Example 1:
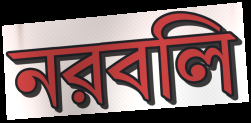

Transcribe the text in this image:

নরবলি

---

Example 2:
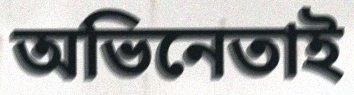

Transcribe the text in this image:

অভিনেতাই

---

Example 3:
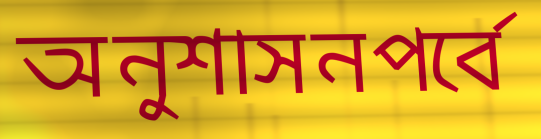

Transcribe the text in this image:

অনুশাসনপর্বে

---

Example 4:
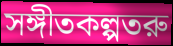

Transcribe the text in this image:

সঙ্গীতকল্পতরু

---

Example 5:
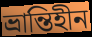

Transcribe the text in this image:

ভ্রান্তিহীন